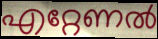
എറ്റേണൽ